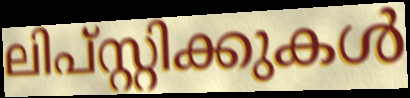
ലിപ്സ്റ്റിക്കുകൾ